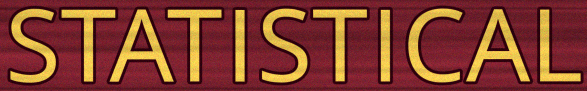
STATISTICAL